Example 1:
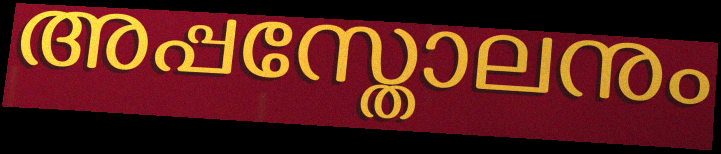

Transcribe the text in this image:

അപ്പസ്തോലനും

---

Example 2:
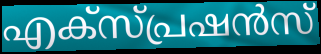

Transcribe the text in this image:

എക്സ്പ്രഷൻസ്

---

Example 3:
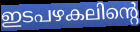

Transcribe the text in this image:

ഇടപഴകലിന്റെ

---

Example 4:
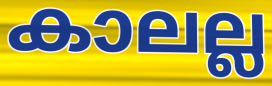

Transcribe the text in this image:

കാലല്ല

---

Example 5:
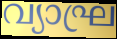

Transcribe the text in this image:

വ്യാഘ്ര